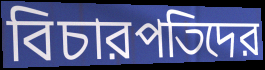
বিচারপতিদের